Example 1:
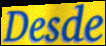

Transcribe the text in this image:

Desde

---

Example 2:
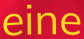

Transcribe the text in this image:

eine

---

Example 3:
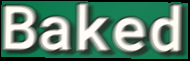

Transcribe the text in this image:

Baked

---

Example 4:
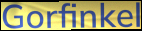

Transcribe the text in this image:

Gorfinkel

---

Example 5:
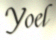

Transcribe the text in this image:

Yoel